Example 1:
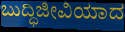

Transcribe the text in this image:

ಬುದ್ಧಿಜೀವಿಯಾದ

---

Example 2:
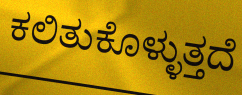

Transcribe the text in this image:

ಕಲಿತುಕೊಳ್ಳುತ್ತದೆ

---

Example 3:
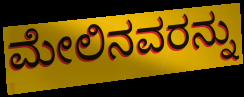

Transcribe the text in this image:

ಮೇಲಿನವರನ್ನು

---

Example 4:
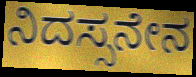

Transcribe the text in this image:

ನಿದಸ್ಸನೇನ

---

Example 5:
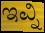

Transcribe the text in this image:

ಇವ್ನಿ